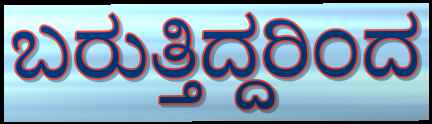
ಬರುತ್ತಿದ್ದರಿಂದ